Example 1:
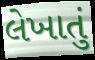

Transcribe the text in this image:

લેખાતું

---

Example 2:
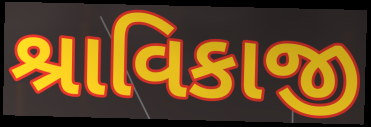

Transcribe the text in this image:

શ્રાવિકાજી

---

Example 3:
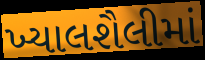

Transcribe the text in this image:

ખ્યાલશૈલીમાં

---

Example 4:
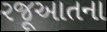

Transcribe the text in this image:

રજૂઆતના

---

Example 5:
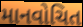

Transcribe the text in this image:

માનવોચિત